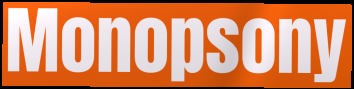
Monopsony